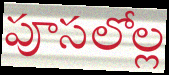
పూసలోల్ల